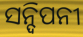
ସନ୍ଦିପନୀ